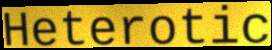
Heterotic